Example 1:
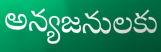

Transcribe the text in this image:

అన్యజనులకు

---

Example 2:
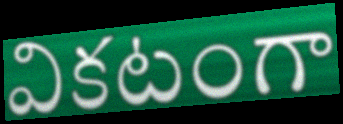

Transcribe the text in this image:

వికటంగా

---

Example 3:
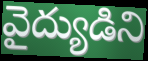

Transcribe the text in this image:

వైద్యుడిని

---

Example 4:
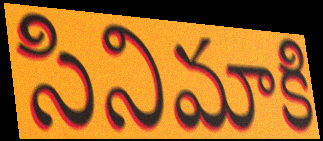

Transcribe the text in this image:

సినిమాకి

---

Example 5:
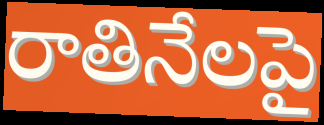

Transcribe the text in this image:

రాతినేలపై